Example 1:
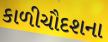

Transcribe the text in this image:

કાળીચૌદશના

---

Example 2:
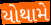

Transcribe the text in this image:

યોથામે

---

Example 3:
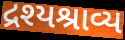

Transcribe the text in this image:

દ્રશ્યશ્રાવ્ય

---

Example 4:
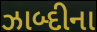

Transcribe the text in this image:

ઝાબ્દીના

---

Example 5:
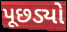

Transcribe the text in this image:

પૂછડ્યો